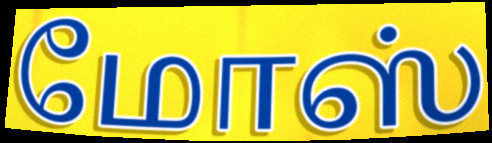
மோஸ்